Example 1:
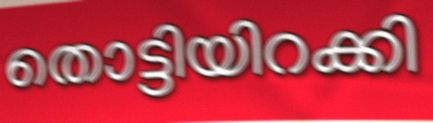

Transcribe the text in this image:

തൊട്ടിയിറക്കി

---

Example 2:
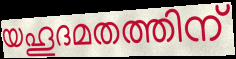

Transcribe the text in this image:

യഹൂദമതത്തിന്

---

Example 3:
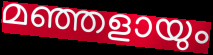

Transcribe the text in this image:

മഞ്ഞളായും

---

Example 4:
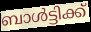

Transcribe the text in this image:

ബാൾട്ടിക്ക്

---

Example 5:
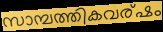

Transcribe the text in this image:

സാമ്പത്തികവര്ഷം